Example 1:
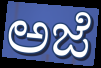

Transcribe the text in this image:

ಅಜೆ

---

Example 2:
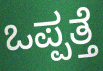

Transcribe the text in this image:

ಒಪ್ಪತ್ತೆ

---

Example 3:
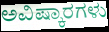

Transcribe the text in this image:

ಅವಿಷ್ಕಾರಗಳು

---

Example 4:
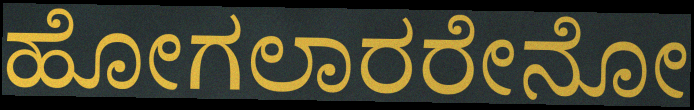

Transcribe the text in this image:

ಹೋಗಲಾರರೇನೋ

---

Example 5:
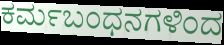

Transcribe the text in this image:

ಕರ್ಮಬಂಧನಗಳಿಂದ